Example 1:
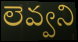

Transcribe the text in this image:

లెవ్వని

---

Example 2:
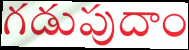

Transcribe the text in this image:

గడుపుదాం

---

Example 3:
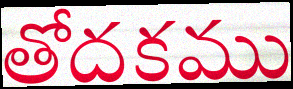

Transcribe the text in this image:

తోదకము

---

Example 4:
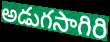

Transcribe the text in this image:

అడుగసాగిరి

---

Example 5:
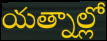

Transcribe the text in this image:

యత్నాల్లో